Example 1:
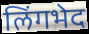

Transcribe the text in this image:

लिंगभेद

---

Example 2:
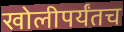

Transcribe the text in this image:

खोलीपर्यंतच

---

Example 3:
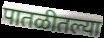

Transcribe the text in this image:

पातळीतल्या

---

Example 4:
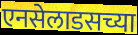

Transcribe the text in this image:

एनसेलाडसच्या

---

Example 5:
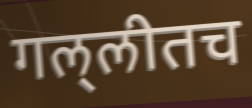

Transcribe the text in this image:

गल्लीतच